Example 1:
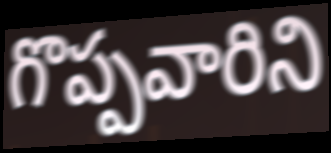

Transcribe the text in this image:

గొప్పవారిని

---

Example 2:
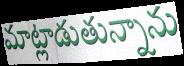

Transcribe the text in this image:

మాట్లాడుతున్నాను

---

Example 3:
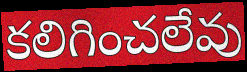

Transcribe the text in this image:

కలిగించలేవు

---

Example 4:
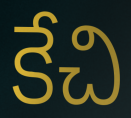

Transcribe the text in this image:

కేచి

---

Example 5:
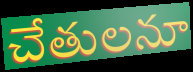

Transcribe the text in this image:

చేతులనూ